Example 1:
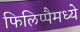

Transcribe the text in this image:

फिलिप्पैमध्ये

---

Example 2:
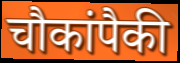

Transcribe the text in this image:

चौकांपैकी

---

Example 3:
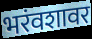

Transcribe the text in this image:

भरंवशावर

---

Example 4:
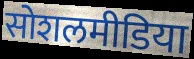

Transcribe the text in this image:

सोशलमीडिया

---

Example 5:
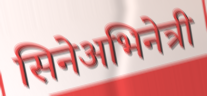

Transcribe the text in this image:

सिनेअभिनेत्री